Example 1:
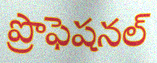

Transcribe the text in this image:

ప్రొఫెషనల్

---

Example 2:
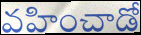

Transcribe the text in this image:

వహించాడో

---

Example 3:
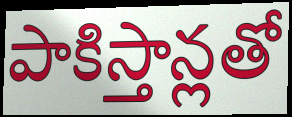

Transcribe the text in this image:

పాకిస్తాన్లతో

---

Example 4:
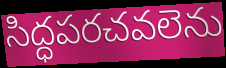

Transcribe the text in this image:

సిద్ధపరచవలెను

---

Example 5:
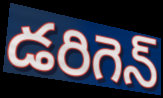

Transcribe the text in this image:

డరిగెన్